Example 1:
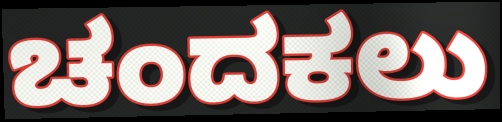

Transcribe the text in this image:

ಚಂದಕಲು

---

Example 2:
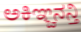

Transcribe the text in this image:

ಅಕಿಞ್ಚನನ್ತಿ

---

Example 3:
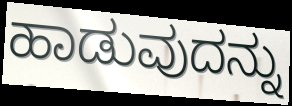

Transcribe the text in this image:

ಹಾಡುವುದನ್ನು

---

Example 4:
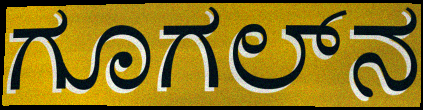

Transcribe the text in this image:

ಗೂಗಲ್‌ನ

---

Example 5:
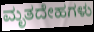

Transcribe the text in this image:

ಮೃತದೇಹಗಳು